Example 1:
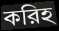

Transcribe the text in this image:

করিহ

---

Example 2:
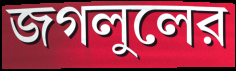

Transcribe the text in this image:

জগলুলের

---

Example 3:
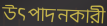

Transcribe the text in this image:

উৎপাদনকারী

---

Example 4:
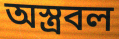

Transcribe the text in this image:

অস্ত্রবল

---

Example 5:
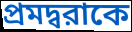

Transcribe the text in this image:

প্রমদ্বরাকে